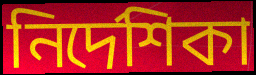
নিৰ্দেশিকা